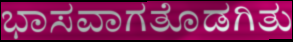
ಭಾಸವಾಗತೊಡಗಿತು